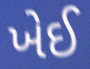
ખેઈ